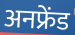
अनफ्रेंड